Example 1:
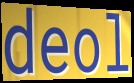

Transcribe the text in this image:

deol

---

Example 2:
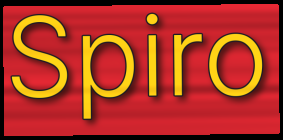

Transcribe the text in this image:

Spiro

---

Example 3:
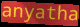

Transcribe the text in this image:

anyatha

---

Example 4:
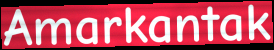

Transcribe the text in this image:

Amarkantak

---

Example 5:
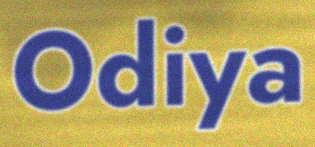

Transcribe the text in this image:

Odiya